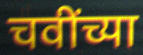
चवींच्या